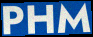
PHM